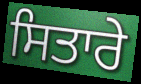
ਸਿਤਾਰੇ